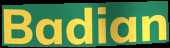
Badian